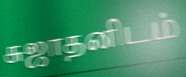
சுஜாதனிடம்